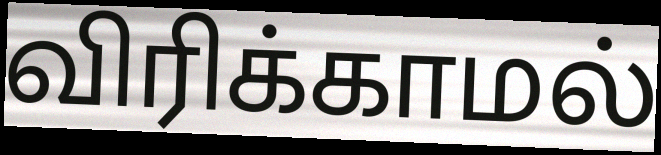
விரிக்காமல்